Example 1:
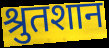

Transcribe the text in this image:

श्रुतशान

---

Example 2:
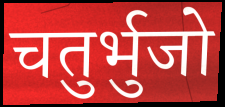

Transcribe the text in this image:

चतुर्भुजो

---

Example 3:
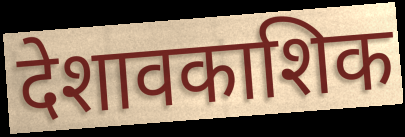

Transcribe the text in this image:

देशावकाशिक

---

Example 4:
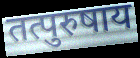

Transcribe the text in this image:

तत्पुरुषाय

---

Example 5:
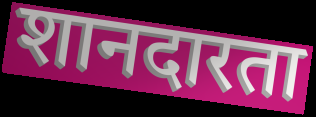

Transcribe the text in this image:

शानदारता